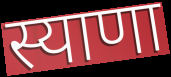
स्याणा